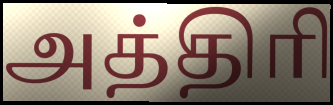
அத்திரி